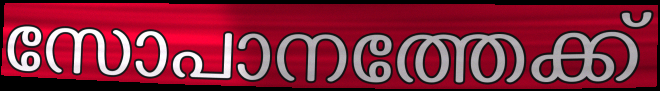
സോപാനത്തേക്ക്